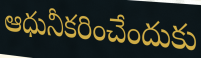
ఆధునీకరించేందుకు